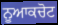
ਨੂਆਕਚੋਟ